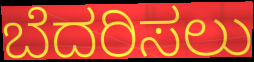
ಬೆದರಿಸಲು